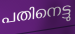
പതിനെട്ടു